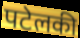
पटेलकी